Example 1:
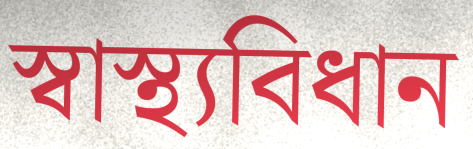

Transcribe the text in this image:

স্বাস্থ্যবিধান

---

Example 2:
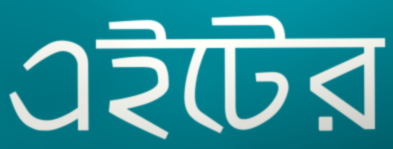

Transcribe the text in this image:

এইটের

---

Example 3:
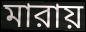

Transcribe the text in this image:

মারায়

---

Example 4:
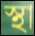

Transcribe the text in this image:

স্থা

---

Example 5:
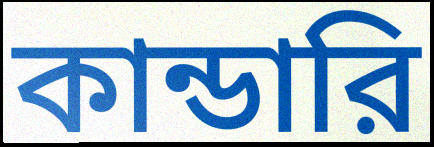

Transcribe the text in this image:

কান্ডারি